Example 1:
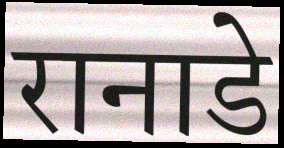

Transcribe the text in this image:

रानाडे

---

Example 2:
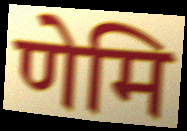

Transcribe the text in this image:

णेमि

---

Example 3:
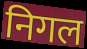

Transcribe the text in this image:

निगल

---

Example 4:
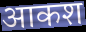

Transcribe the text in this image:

आकश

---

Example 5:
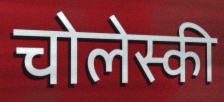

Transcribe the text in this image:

चोलेस्की